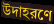
উদাহরণে